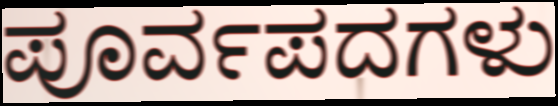
ಪೂರ್ವಪದಗಳು